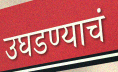
उघडण्याचं